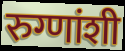
रुग्णांशी